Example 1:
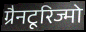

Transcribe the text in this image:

ग्रैनटूरिज्मो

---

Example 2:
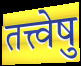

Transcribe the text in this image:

तत्त्वेषु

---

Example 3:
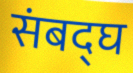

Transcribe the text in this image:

संबद्घ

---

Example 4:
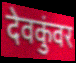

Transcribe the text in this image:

देवकुंवर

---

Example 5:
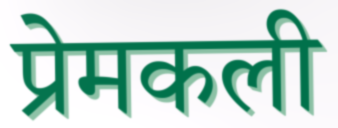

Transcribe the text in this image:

प्रेमकली